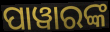
ପାୱାରଙ୍କ